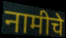
नामीचे